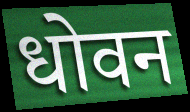
धोवन